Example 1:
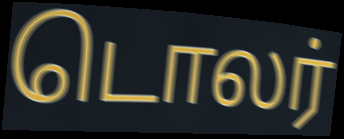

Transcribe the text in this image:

டொலர்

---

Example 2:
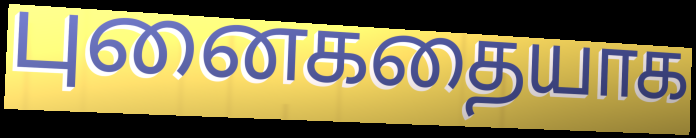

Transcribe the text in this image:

புனைகதையாக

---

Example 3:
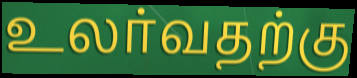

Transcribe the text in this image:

உலர்வதற்கு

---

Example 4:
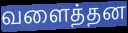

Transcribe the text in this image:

வளைத்தன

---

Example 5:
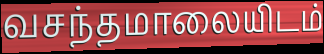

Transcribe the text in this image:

வசந்தமாலையிடம்